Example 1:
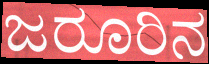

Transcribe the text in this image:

ಜರೂರಿನ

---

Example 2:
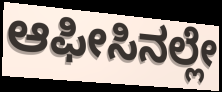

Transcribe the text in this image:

ಆಫೀಸಿನಲ್ಲೇ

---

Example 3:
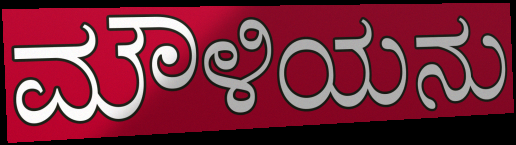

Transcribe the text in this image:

ಮೌಳಿಯನು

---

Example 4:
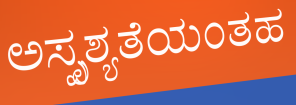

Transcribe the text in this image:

ಅಸ್ಪೃಶ್ಯತೆಯಂತಹ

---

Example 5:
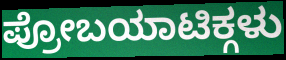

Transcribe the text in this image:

ಪ್ರೋಬಯಾಟಿಕ್ಗಳು